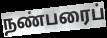
நண்பரைப்